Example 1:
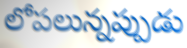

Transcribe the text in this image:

లోపలున్నప్పుడు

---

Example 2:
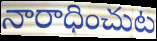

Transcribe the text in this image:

నారాధించుట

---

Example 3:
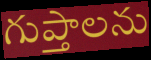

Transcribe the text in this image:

గుప్తాలను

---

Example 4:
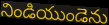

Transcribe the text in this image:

నిండియుండెను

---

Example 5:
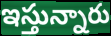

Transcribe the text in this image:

ఇస్తున్నారు